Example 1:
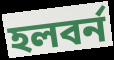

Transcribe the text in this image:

হলবর্ন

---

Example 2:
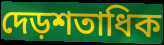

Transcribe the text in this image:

দেড়শতাধিক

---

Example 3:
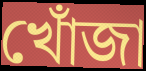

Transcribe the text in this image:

খোঁজা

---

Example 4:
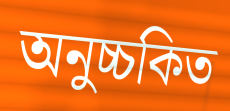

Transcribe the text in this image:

অনুচ্চকিত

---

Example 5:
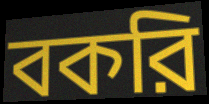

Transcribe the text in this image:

বকরি